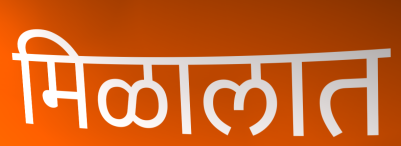
मिळालात